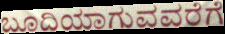
ಬೂದಿಯಾಗುವವರೆಗೆ